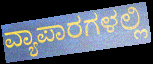
ವ್ಯಾಪಾರಗಳಲ್ಲಿ